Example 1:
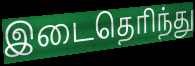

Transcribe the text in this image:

இடைதெரிந்து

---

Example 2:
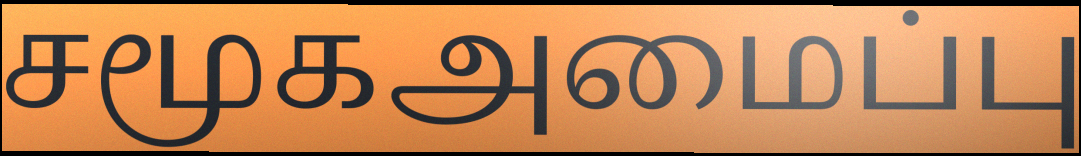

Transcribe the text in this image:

சமூகஅமைப்பு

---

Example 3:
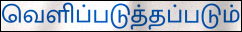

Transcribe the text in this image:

வெளிப்படுத்தப்படும்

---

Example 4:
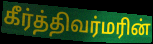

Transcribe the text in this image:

கீர்த்திவர்மரின்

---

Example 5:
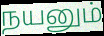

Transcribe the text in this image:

நயனும்